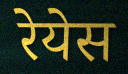
रेयेस